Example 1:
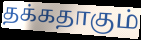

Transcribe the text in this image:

தக்கதாகும்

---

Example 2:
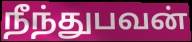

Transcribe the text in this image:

நீந்துபவன்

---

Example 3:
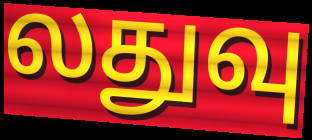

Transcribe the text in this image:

லதுவு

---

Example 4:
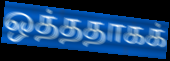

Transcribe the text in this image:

ஒத்ததாகக்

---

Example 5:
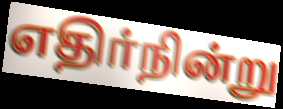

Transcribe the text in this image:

எதிர்நின்று